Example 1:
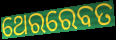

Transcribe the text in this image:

ଥେରରେବତ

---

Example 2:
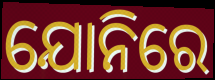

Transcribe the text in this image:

ଯୋନିରେ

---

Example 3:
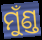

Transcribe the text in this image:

ମୁଁଣ୍ଡ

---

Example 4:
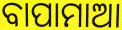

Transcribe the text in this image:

ବାପାମାଆ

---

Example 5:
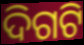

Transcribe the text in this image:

ଦିଗଟି